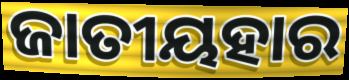
ଜାତୀୟହାର